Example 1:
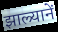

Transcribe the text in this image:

झाल्यानें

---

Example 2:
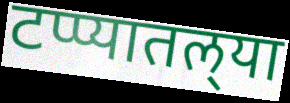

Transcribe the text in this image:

टप्प्यातल्या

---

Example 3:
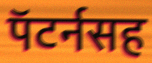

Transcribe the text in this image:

पॅटर्नसह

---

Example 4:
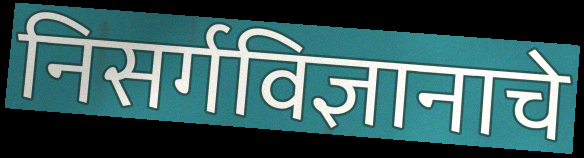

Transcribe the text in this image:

निसर्गविज्ञानाचे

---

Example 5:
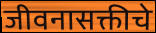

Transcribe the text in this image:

जीवनासक्तीचे